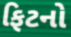
ફિટનો